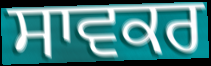
ਸਾਵਕਰ